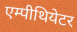
एम्पीथियेटर